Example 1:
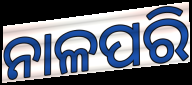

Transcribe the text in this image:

ନାଳପରି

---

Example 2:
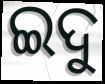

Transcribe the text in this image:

ଇଦୁ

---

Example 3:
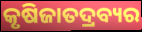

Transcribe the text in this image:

କୃଷିଜାତଦ୍ରବ୍ୟର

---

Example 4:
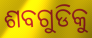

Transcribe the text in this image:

ଶବଗୁଡିକୁ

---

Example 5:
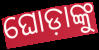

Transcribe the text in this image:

ଘୋଡ଼ାଙ୍କୁ